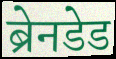
ब्रेनडेड